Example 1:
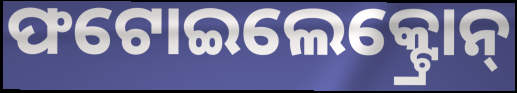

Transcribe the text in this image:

ଫଟୋଇଲେକ୍ଟ୍ରୋନ୍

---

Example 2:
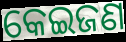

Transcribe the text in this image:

କେଇଜଣ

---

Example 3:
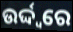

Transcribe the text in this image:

ଉର୍ଦ୍ଦ୍ୱରେ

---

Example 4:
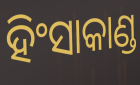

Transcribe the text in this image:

ହିଂସାକାଣ୍ଡ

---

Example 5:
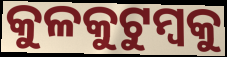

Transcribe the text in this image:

କୁଳକୁଟୁମ୍ବକୁ